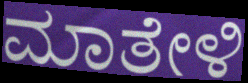
ಮಾತೇಳಿ